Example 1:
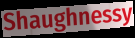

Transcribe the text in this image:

Shaughnessy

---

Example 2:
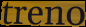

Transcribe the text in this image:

treno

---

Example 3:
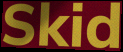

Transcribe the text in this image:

Skid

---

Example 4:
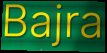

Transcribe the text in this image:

Bajra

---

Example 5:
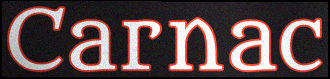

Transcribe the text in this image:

Carnac